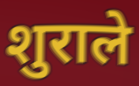
शुराले